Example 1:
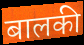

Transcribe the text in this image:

बालकी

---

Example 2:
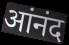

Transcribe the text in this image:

आंनंद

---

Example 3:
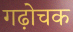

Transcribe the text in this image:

गढ़ोचक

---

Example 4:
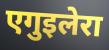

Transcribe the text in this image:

एगुइलेरा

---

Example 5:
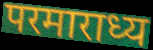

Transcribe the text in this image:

परमाराध्य